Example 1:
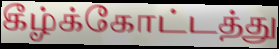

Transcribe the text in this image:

கீழ்க்கோட்டத்து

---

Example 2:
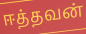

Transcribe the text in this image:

ஈத்தவன்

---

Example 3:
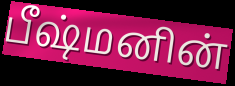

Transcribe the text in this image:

பீஷ்மனின்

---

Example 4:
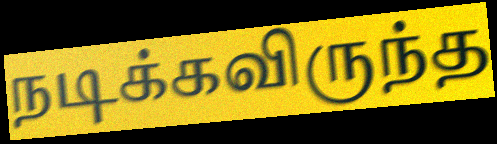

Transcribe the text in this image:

நடிக்கவிருந்த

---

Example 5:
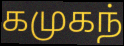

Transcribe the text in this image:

கமுகந்